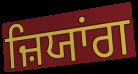
ਜ਼ਿਯਾਂਗ